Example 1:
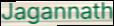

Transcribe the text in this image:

Jagannath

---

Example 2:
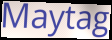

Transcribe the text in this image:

Maytag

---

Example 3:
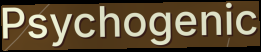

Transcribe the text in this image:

Psychogenic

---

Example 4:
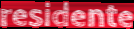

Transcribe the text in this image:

residente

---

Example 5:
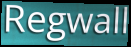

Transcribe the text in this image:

Regwall